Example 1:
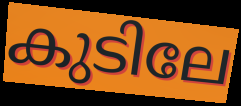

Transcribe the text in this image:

കുടിലേ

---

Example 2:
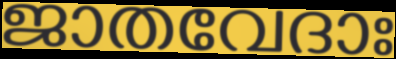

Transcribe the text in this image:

ജാതവേദാഃ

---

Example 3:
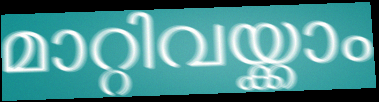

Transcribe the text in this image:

മാറ്റിവയ്ക്കാം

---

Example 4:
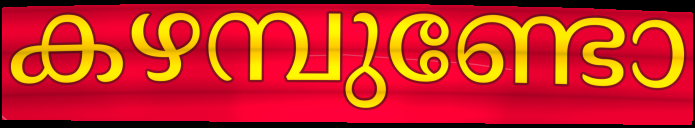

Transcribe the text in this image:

കഴമ്പുണ്ടോ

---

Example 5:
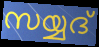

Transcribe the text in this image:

സയ്യദ്